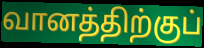
வானத்திற்குப்